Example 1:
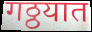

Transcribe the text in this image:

गठ्ठयात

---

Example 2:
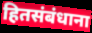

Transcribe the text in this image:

हितसंबंधाना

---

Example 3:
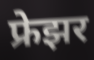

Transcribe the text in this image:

फ्रेझर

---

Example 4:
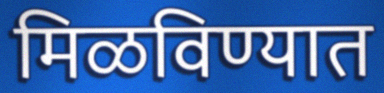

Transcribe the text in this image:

मिळविण्यात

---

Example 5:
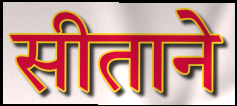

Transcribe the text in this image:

सीताने